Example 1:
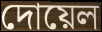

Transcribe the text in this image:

দোয়েল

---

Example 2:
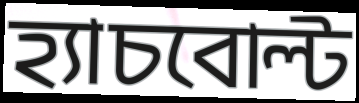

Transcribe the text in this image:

হ্যাচবোল্ট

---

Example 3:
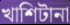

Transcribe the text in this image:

খাশিটানা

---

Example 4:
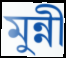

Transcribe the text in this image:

মুন্নী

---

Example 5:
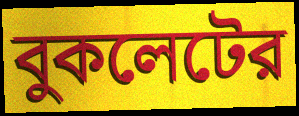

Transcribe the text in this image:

বুকলেটের